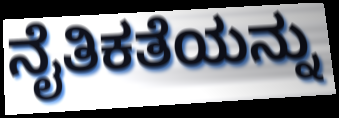
ನೈತಿಕತೆಯನ್ನು